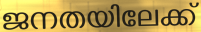
ജനതയിലേക്ക്